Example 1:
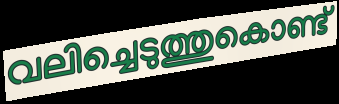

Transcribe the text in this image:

വലിച്ചെടുത്തുകൊണ്ട്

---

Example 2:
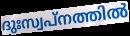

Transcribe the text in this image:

ദുഃസ്വപ്നത്തിൽ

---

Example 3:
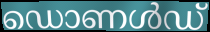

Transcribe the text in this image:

ഡൊണൾഡ്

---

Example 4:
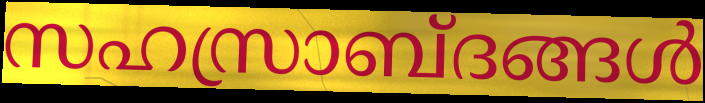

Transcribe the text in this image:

സഹസ്രാബ്ദങ്ങൾ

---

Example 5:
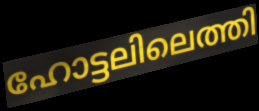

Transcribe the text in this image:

ഹോട്ടലിലെത്തി